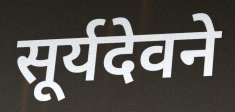
सूर्यदेवने